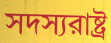
সদস্যরাষ্ট্র